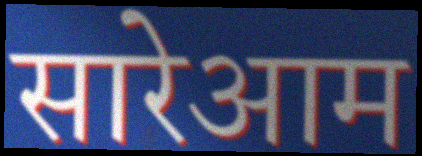
सारेआम